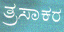
ತ್ರಸಾಕರ